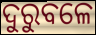
ଦୁରୁବଳେ